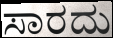
ಸಾರದು